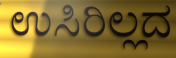
ಉಸಿರಿಲ್ಲದ